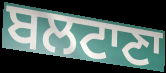
ਬਲਟਾਣਾ